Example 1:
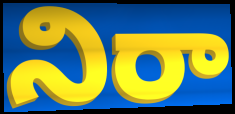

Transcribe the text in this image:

నిరా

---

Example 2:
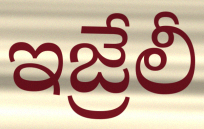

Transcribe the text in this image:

ఇజ్రేలీ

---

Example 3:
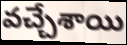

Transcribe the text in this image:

వచ్చేశాయి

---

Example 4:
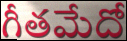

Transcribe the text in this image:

గీతమేదో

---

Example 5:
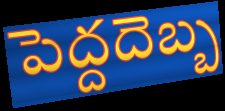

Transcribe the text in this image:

పెద్దదెబ్బ